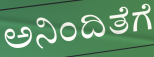
ಅನಿಂದಿತೆಗೆ